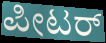
ಪೀಟರ್